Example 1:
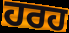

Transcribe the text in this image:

ਹਰਹ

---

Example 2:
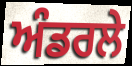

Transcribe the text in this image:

ਅੰਡਰਲੇ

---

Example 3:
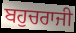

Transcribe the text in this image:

ਬਹੁਚਰਾਜੀ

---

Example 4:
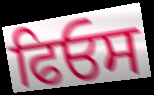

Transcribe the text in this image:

ਫਿਓਸ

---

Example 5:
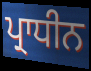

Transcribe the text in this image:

ਪ੍ਰਾਧੀਨ